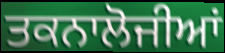
ਤਕਨਾਲੋਜੀਆਂ